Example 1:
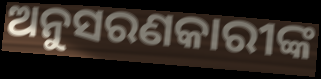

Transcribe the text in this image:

ଅନୁସରଣକାରୀଙ୍କ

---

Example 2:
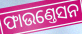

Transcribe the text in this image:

ଫାଉଣ୍ତେସନ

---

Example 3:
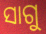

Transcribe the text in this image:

ସାଗୁ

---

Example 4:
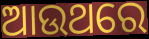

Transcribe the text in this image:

ଆଉଥରେ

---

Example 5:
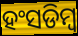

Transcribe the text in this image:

ହଂସଡିମ୍ବ